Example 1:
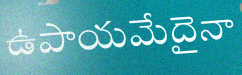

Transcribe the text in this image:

ఉపాయమేదైనా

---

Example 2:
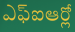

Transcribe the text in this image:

ఎఫ్ఐఆర్లో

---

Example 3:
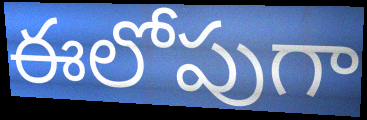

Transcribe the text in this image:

ఈలోపుగా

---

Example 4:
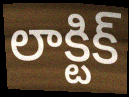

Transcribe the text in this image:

లాక్టిక్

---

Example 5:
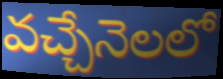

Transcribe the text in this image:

వచ్చేనెలలో